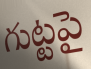
గుట్టపై